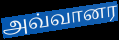
அவ்வானர